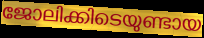
ജോലിക്കിടെയുണ്ടായ